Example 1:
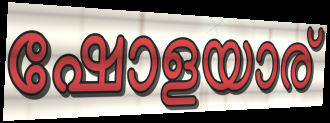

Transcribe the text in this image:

ഷോളയാര്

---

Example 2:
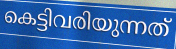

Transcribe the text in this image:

കെട്ടിവരിയുന്നത്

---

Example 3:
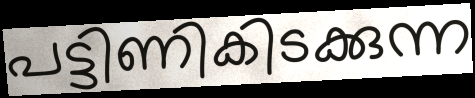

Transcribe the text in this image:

പട്ടിണികിടക്കുന്ന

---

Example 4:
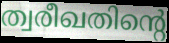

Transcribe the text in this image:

ത്വരീഖതിന്റെ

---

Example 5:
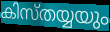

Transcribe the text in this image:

കിസ്തയ്യയും